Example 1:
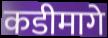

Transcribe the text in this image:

कडीमागे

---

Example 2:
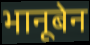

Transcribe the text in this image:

भानूबेन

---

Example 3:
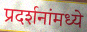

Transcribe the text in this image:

प्रदर्शनांमध्ये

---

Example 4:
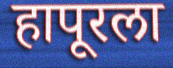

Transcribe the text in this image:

हापूरला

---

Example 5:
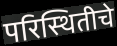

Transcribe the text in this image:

परिस्थितीचे